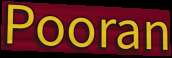
Pooran